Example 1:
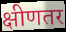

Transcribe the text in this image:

क्षीणतर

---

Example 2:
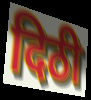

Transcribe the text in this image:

दिठी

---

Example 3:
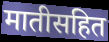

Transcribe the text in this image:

मातीसहित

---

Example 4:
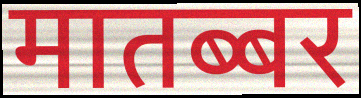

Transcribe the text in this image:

मातब्बर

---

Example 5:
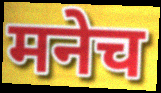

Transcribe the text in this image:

मनेच